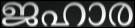
ജഹാര